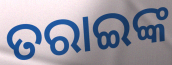
ତରାଇଙ୍କ